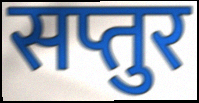
सप्तुर